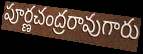
పూర్ణచంద్రరావుగారు